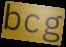
bcg